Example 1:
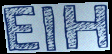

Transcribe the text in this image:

EIH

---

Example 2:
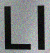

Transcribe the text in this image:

LI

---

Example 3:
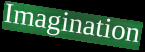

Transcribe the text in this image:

Imagination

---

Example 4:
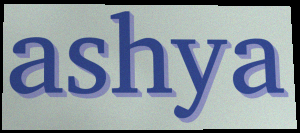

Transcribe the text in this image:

ashya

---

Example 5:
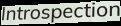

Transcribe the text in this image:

Introspection